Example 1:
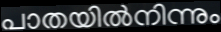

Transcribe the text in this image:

പാതയിൽനിന്നും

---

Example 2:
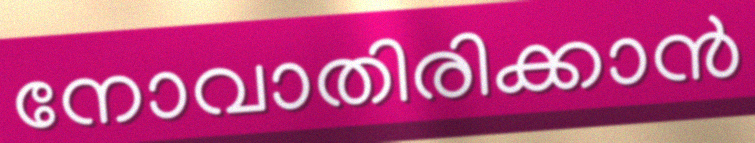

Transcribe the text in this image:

നോവാതിരിക്കാൻ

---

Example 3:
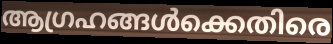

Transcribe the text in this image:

ആഗ്രഹങ്ങൾക്കെതിരെ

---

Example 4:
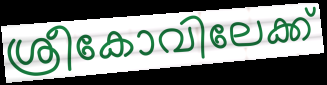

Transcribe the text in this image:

ശ്രീകോവിലേക്ക്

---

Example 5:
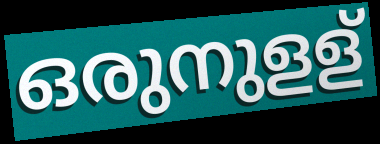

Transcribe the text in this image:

ഒരുനുളള്